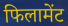
फिलामेंट